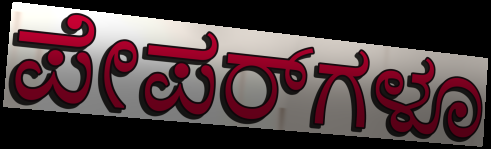
ಪೇಪರ್‌ಗಳೂ